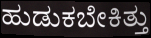
ಹುಡುಕಬೇಕಿತ್ತು